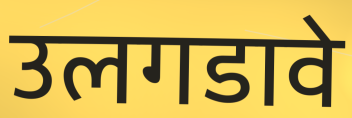
उलगडावे